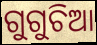
ଗୁଗୁଚିଆ